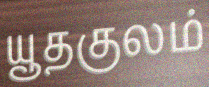
யூதகுலம்